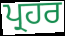
ਪ੍ਰਹਰ